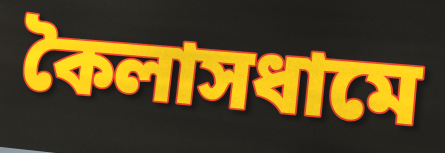
কৈলাসধামে